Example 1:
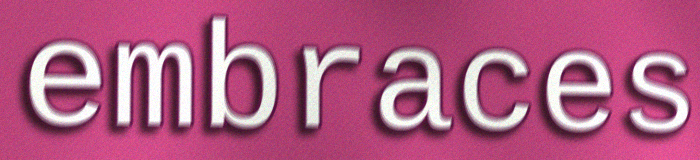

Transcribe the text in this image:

embraces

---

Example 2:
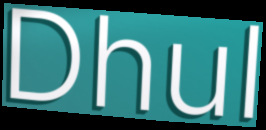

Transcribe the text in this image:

Dhul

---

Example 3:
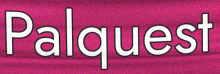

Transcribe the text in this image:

Palquest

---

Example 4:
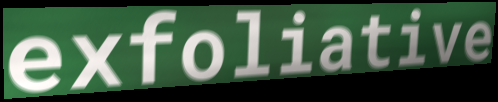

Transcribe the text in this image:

exfoliative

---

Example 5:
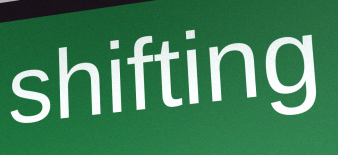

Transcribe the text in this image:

shifting